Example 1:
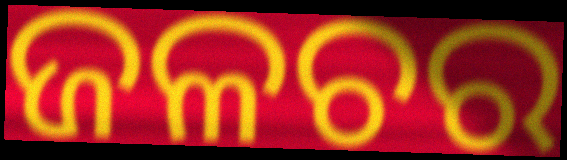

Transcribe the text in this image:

ଜଳଚର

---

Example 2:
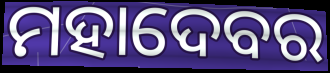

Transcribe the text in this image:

ମହାଦେବର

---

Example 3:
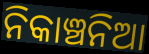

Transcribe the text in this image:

ନିକାଞ୍ଚନିଆ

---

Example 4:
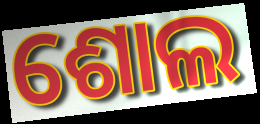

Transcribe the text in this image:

ଶୋଲ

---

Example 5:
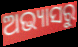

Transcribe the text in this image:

ଅଭ୍ୟାସରୁ